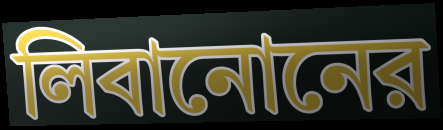
লিবানোনের